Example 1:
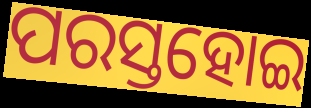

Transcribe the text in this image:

ପରସ୍ତହୋଇ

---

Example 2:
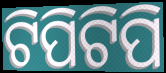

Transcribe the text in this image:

ଟିପିଟିପି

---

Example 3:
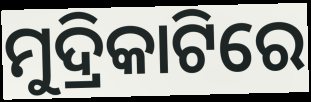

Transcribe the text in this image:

ମୁଦ୍ରିକାଟିରେ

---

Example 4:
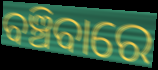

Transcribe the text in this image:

ବଞ୍ଚିବାରେ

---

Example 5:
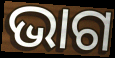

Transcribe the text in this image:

ଭାଗ